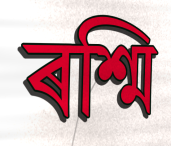
ৰশ্মি